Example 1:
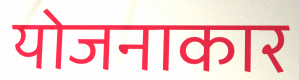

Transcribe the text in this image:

योजनाकार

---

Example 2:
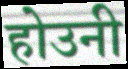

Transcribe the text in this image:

होउनी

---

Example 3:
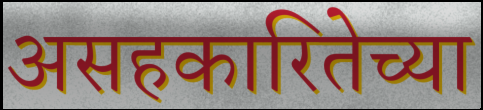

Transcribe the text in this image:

असहकारितेच्या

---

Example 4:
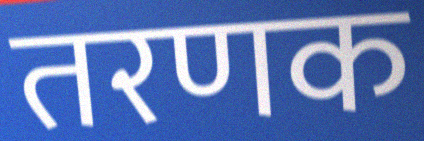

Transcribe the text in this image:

तरणक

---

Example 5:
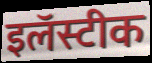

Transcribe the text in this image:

इलॅस्टीक